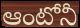
ఆంటోనీ